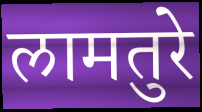
लामतुरे